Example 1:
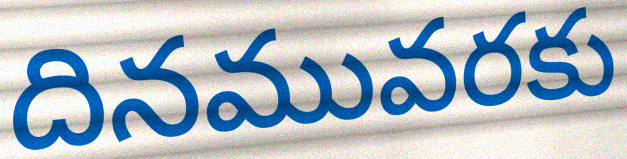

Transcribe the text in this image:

దినమువరకు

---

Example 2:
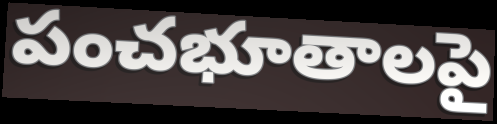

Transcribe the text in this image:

పంచభూతాలపై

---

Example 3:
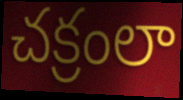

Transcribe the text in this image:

చక్రంలా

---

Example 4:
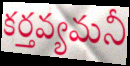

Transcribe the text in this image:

కర్తవ్యమనీ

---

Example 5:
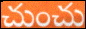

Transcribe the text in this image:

చుంచు